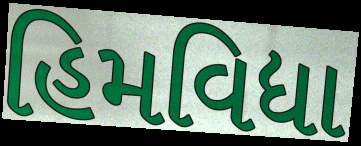
હિમવિદ્યા